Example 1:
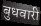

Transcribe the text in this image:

बुधवारी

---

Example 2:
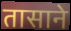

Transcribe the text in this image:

तासाने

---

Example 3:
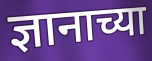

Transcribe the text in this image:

ज्ञानाच्या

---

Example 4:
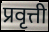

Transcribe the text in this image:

प्रवृत्ती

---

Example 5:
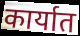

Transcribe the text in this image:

कार्यात